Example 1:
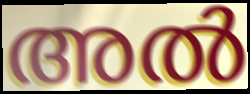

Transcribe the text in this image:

അൽ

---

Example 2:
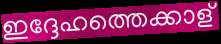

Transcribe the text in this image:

ഇദ്ദേഹത്തെക്കാള്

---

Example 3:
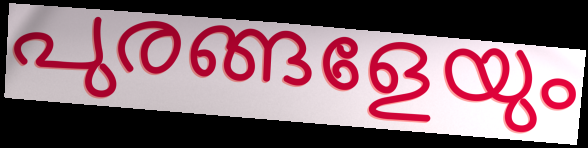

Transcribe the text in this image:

പുരങ്ങളേയും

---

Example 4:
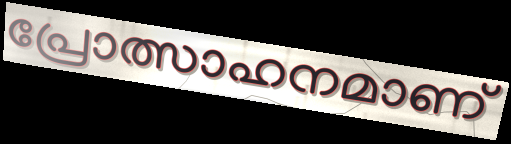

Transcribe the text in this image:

പ്രോത്സാഹനമാണ്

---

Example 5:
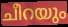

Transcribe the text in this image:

ചീറയും